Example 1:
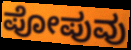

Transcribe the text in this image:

ಪೋಪುವು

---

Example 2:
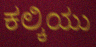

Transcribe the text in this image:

ಕಲ್ಕಿಯು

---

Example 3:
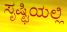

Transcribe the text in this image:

ಸೃಷ್ಟಿಯಲ್ಲಿ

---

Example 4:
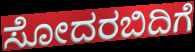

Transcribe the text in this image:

ಸೋದರಬಿದಿಗೆ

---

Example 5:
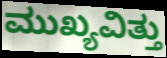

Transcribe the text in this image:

ಮುಖ್ಯವಿತ್ತು